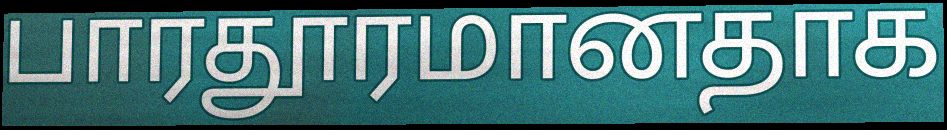
பாரதூரமானதாக